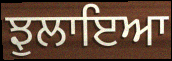
ਝੁਲਾਇਆ